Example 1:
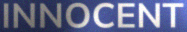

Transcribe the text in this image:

INNOCENT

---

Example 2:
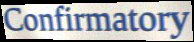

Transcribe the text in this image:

Confirmatory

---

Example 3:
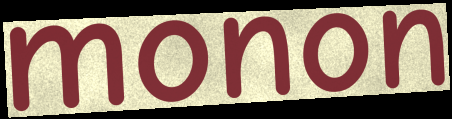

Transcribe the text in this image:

monon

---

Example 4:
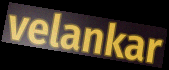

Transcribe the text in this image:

velankar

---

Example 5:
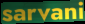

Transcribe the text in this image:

sarvani